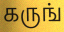
கருங்